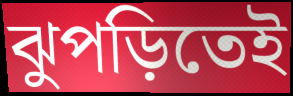
ঝুপড়িতেই